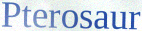
Pterosaur